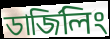
ডার্জিলিং